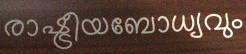
രാഷ്ട്രീയബോധ്യവും